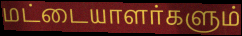
மட்டையாளர்களும்